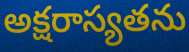
అక్షరాస్యతను